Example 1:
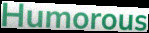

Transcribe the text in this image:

Humorous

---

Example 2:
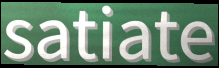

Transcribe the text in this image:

satiate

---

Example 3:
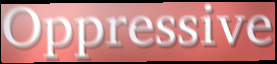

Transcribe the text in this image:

Oppressive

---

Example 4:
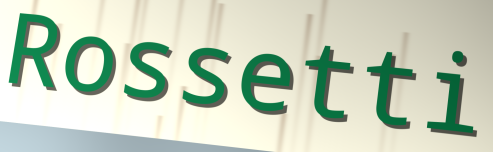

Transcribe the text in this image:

Rossetti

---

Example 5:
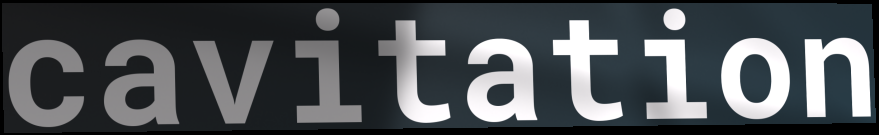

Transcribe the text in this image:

cavitation